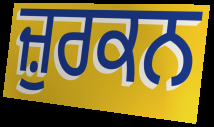
ਜ਼ੁਰਕਨ